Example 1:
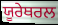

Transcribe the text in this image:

ਯੂਰੇਥਰਲ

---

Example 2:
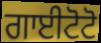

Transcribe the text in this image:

ਗਾਈਟੋਟੋ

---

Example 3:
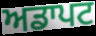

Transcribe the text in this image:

ਅਡਾਪਟ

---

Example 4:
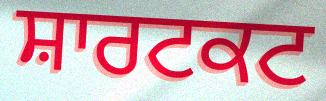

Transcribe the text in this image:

ਸ਼ਾਰਟਕਟ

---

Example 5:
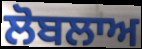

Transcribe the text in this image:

ਲੋਬਲਾਅ